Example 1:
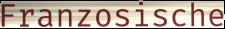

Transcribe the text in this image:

Franzosische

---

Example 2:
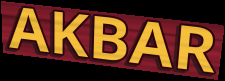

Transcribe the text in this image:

AKBAR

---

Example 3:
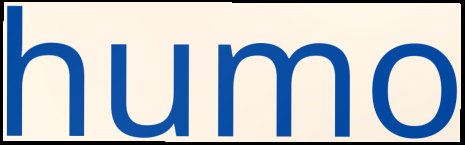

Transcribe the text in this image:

humo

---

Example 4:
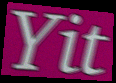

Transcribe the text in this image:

Yit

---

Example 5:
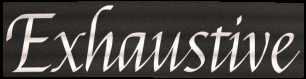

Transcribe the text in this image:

Exhaustive